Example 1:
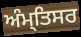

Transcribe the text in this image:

ਅੰਮ੍ਤਿਸਰ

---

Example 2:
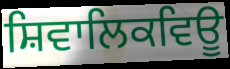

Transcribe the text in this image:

ਸ਼ਿਵਾਲਿਕਵਿਊ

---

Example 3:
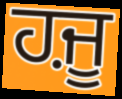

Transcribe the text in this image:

ਹ਼ਜੂ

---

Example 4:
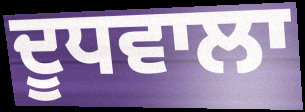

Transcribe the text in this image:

ਦੂਧਵਾਲਾ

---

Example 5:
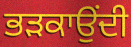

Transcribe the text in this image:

ਭੜਕਾਉਂਦੀ